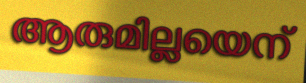
ആരുമില്ലയെന്